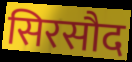
सिरसौद